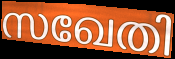
സഖേതി